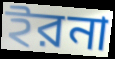
ইরনা